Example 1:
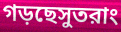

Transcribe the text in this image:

গড়ছেসুতরাং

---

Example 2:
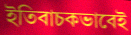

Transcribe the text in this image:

ইতিবাচকভাবেই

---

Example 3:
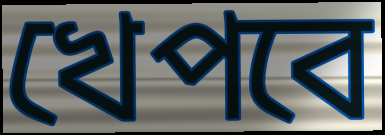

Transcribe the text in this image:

খেপবে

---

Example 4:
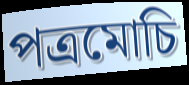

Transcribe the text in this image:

পত্রমোচি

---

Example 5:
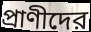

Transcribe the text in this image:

প্রাণীদের